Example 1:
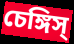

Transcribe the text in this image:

চেঙ্গিস্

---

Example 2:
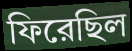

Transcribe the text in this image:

ফিরেছিল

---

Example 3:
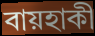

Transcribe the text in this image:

বায়হাকী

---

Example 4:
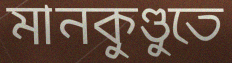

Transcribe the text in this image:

মানকুণ্ডুতে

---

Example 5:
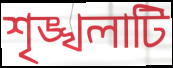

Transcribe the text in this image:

শৃঙ্খলাটি